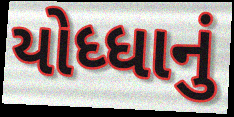
યોધ્ધાનું